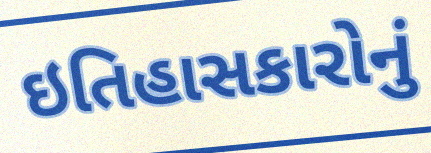
ઇતિહાસકારોનું